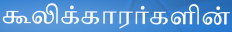
கூலிக்காரர்களின்